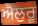
ਐਲੁਰੂ